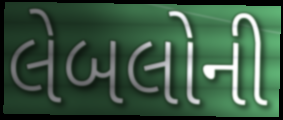
લેબલોની